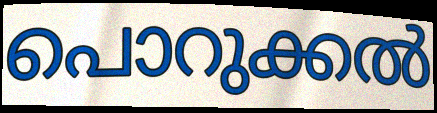
പൊറുക്കൽ